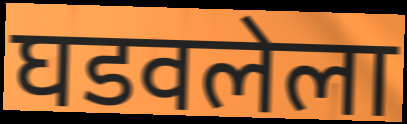
घडवलेला